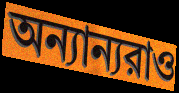
অন্যান্যরাও